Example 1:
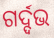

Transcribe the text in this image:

ଗର୍ଦ୍ଦଭ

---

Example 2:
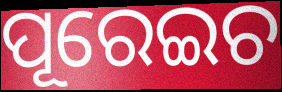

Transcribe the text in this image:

ପୂରେଇଚ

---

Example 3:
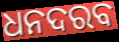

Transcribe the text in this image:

ଧନଦରବ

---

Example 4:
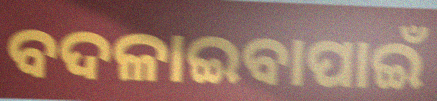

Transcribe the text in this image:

ବଦଳାଇବାପାଇଁ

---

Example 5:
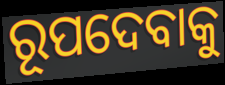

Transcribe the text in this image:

ରୂପଦେବାକୁ